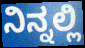
ನಿನ್ನಲ್ಲಿ